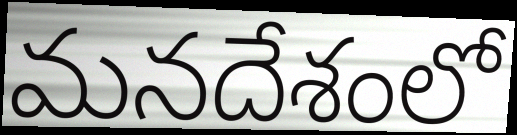
మనదేశంలో